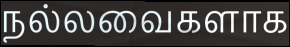
நல்லவைகளாக